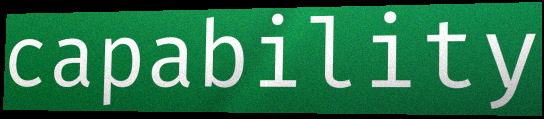
capability